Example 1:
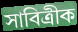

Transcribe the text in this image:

সাবিত্ৰীক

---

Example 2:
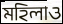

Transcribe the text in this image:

মহিলাও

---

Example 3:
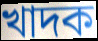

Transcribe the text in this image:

খাদক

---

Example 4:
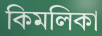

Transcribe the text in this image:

কিমলিকা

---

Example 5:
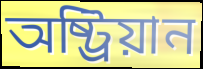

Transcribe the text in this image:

অষ্ট্ৰিয়ান